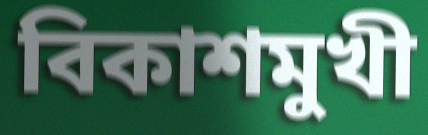
বিকাশমুখী